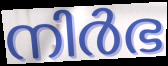
നിർഭ